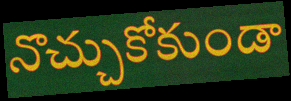
నొచ్చుకోకుండా